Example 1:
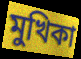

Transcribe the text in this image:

মুখিকা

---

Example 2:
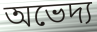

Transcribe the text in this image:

অভেদ্য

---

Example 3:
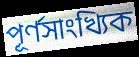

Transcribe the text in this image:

পূর্ণসাংখ্যিক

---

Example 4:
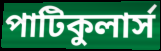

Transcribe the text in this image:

পাটিকুলার্স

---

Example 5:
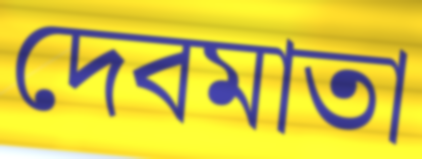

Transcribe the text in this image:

দেবমাতা